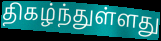
திகழ்ந்துள்ளது